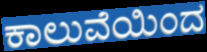
ಕಾಲುವೆಯಿಂದ